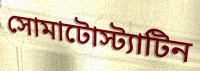
সোমাটোস্ট্যাটিন